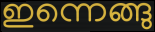
ഇന്നെങ്ങു